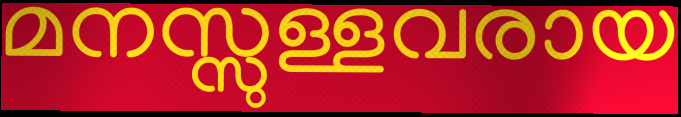
മനസ്സുള്ളവരായ